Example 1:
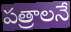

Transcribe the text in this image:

పత్రాలనే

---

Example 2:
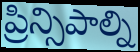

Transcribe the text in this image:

ప్రిన్సిపాల్ని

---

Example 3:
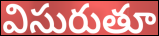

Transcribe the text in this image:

విసురుతూ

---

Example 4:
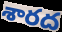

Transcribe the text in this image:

శారద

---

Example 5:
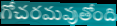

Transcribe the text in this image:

గోచరమవుతోంది